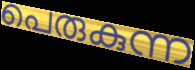
പെരുകുന്ന